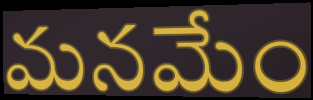
మనమేం